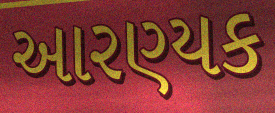
આરણ્યક